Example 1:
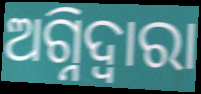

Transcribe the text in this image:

ଅଗ୍ନିଦ୍ଵାରା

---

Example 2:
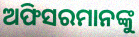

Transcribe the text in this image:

ଅଫିସରମାନଙ୍କୁ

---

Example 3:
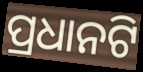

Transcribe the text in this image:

ପ୍ରଧାନଟି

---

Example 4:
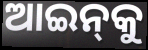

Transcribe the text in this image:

ଆଇନ୍‍କୁ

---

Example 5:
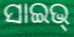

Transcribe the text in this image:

ସାଇଭ୍